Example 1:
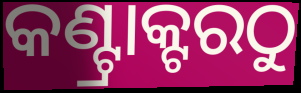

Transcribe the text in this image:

କଣ୍ଟ୍ରାକ୍ଟରଠୁ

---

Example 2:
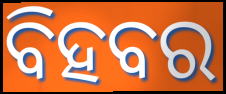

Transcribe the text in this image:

ବିହବର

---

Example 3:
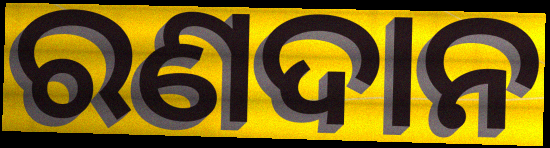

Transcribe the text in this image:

ରଣଦାନ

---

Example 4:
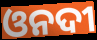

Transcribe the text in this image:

ଓନଦୀ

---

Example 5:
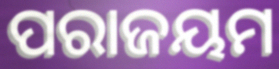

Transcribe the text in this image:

ପରାଜୟମ